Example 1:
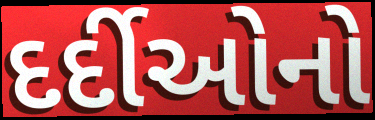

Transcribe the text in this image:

દર્દીઓનો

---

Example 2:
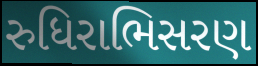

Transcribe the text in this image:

રુધિરાભિસરણ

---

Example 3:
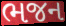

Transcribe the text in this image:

ભજન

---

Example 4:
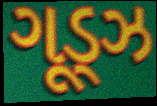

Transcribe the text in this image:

ગૂડ્ઝ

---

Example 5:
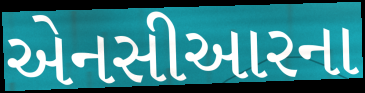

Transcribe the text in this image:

એનસીઆરના